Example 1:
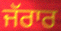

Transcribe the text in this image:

ਜੱਰਾਰ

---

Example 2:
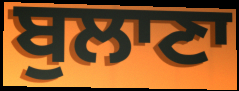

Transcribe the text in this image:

ਬੁਲਾਣਾ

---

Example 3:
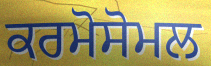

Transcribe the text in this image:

ਕਰਮੋਸੋਮਲ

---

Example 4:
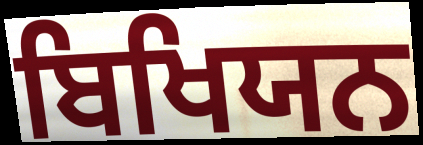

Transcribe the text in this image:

ਬਿਖਿਯਨ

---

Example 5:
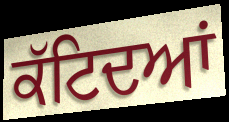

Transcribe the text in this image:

ਕੱਟਿਦਆਂ